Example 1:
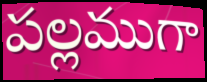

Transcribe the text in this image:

పల్లముగా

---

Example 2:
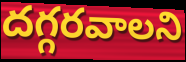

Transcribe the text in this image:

దగ్గరవాలని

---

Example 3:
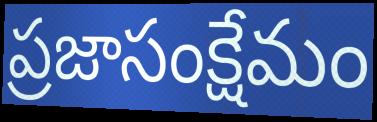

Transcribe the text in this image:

ప్రజాసంక్షేమం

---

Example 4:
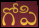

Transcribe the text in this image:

గోపి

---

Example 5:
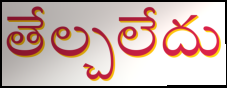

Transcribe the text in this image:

తేల్చలేదు